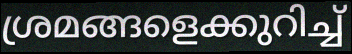
ശ്രമങ്ങളെക്കുറിച്ച്